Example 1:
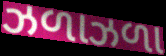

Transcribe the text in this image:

ઝળાઝળા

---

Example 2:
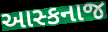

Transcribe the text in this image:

આસ્કનાજ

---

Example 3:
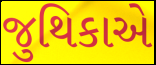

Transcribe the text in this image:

જુથિકાએ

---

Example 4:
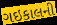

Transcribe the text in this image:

ગઇકાલની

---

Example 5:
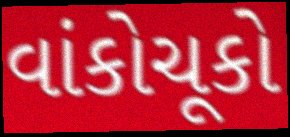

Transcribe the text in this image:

વાંકોચૂકો